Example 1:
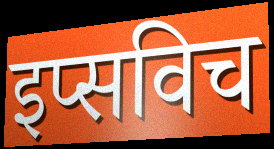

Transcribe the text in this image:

इप्सविच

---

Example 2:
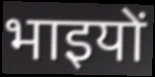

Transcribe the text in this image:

भाइयों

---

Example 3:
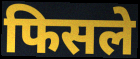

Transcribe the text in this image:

फिसले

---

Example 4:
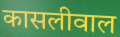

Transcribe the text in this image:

कासलीवाल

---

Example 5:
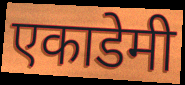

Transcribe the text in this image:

एकाडेमी